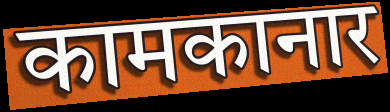
कामकानार